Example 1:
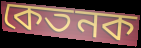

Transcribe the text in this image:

কেতনক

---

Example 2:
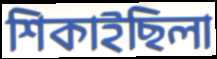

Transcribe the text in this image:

শিকাইছিলা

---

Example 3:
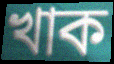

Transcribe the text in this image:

খাক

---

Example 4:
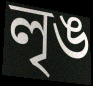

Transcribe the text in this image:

লৃঙ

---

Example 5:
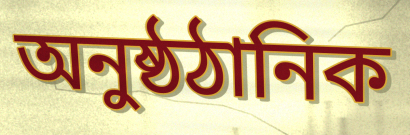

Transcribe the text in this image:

অনুষ্ঠঠানিক